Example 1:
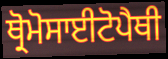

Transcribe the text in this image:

ਥ੍ਰੋਮੋਸਾਈਟੋਪੈਥੀ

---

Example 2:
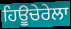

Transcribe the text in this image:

ਹਿਊਚੇਰੇਲਾ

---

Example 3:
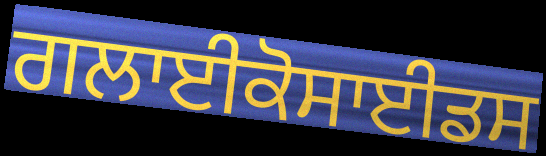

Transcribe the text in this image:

ਗਲਾਈਕੋਸਾਈਡਸ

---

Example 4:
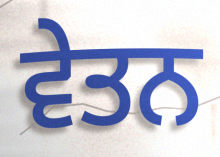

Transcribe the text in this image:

ਵੇਤਨ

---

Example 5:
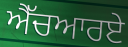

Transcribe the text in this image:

ਐੱਚਆਰਏ